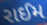
રાઈમ